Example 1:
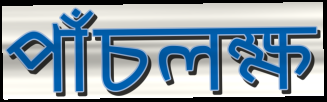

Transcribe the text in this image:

পাঁচলক্ষ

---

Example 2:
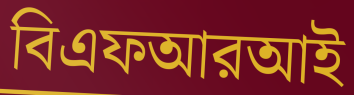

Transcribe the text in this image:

বিএফআরআই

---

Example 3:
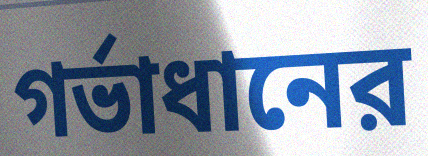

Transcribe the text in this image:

গর্ভাধানের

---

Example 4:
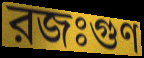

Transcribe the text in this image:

রজঃগুণ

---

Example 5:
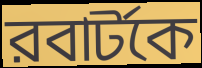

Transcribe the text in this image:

রবার্টকে